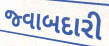
જ્વાબદારી